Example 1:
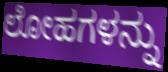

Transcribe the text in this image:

ಲೋಹಗಳನ್ನು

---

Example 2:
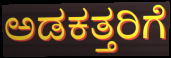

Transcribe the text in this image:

ಅಡಕತ್ತರಿಗೆ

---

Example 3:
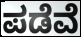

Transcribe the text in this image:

ಪಡೆವೆ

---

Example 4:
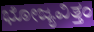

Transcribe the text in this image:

ಭೋಜ್ಯವಿತ್ತಂ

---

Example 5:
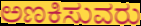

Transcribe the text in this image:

ಅಣಕಿಸುವರು